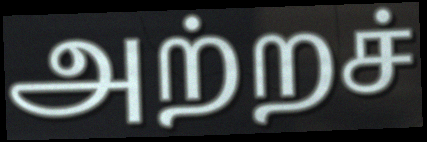
அற்றச்